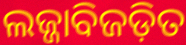
ଲଜ୍ଜାବିଜଡ଼ିତ